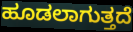
ಹೂಡಲಾಗುತ್ತದೆ